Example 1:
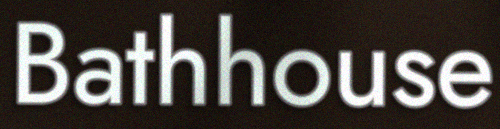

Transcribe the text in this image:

Bathhouse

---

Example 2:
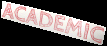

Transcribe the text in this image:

ACADEMIC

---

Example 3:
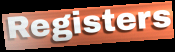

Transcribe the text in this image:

Registers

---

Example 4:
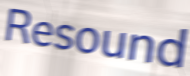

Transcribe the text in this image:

Resound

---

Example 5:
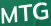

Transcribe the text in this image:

MTG